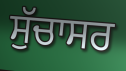
ਸੁੱਚਾਸਰ